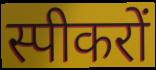
स्पीकरों